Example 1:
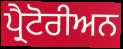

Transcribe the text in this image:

ਪ੍ਰੈਟੋਰੀਅਨ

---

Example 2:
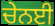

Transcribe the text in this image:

ਚੇਨਈ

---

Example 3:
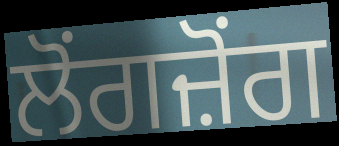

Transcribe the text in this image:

ਲੋਂਗਜ਼ੋਂਗ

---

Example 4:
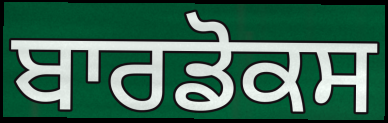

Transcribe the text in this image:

ਬਾਰਡੋਕਸ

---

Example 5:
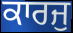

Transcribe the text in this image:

ਕਾਰਜੁ